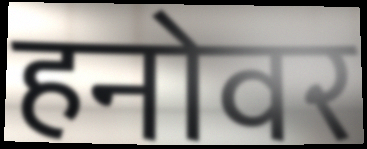
हनोवर